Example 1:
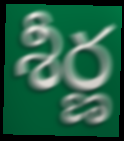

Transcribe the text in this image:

శీర్ణ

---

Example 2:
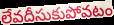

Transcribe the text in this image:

లేవదీసుకుపోవటం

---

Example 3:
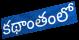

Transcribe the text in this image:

కథాంతంలో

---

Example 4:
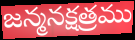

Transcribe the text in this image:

జన్మనక్షత్రము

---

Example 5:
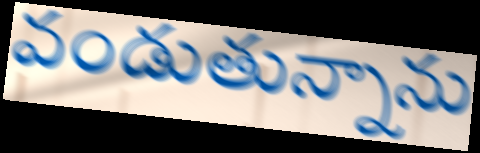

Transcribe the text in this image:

వండుతున్నాను